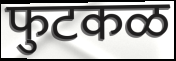
फुटकळ